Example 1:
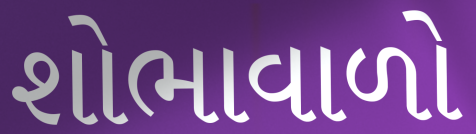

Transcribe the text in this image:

શોભાવાળો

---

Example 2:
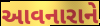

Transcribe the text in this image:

આવનારાને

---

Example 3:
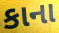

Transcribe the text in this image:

કાના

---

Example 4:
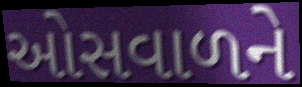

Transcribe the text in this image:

ઓસવાળને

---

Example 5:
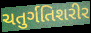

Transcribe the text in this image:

ચતુર્ગતિશરીર